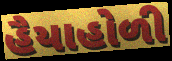
હૈયાહોળી